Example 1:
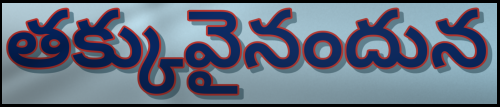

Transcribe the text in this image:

తక్కువైనందున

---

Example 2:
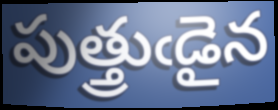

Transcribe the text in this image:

పుత్త్రుఁడైన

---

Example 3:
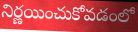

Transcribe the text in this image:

నిర్ణయించుకోవడంలో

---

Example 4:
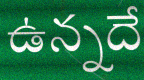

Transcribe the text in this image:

ఉన్నదే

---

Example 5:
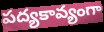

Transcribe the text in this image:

పద్యకావ్యంగా